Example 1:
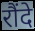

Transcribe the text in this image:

रौंदे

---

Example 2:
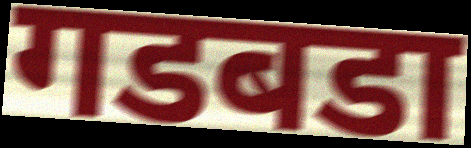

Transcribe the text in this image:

गडबडा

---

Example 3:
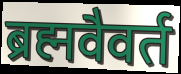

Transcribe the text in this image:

ब्रह्मवैवर्त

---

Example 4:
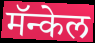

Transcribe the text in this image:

मॅन्केल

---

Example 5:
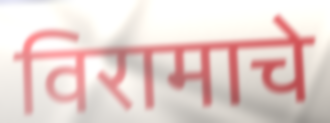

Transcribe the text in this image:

विरामाचे